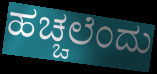
ಹಚ್ಚಲೆಂದು